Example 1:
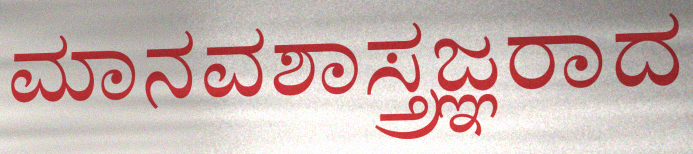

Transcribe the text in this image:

ಮಾನವಶಾಸ್ತ್ರಜ್ಞರಾದ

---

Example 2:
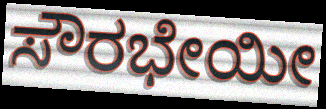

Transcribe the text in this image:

ಸೌರಭೇಯೀ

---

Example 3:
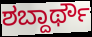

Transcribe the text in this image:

ಶಬ್ದಾರ್ಥೌ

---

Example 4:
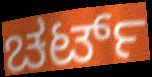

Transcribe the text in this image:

ಚರ್ಟ್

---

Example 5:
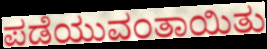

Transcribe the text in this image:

ಪಡೆಯುವಂತಾಯಿತು